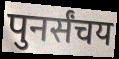
पुनर्संचय